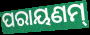
ପରାୟଣମ୍